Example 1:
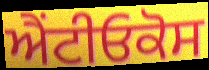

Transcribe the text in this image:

ਐਂਟੀਓਕੋਸ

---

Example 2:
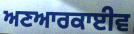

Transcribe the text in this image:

ਅਣਆਰਕਾਈਵ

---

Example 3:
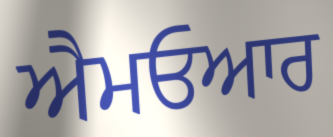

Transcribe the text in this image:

ਐਮਓਆਰ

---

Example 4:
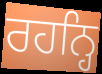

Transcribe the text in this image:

ਰਹਨ੍ਹਿ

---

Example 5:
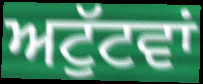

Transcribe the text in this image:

ਅਟੁੱਟਵਾਂ